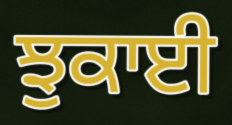
ਝੁਕਾਈ